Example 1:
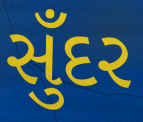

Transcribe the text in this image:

સુઁદર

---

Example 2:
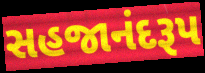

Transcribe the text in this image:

સહજાનંદરૂપ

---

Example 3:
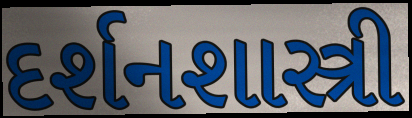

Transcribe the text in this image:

દર્શનશાસ્ત્રી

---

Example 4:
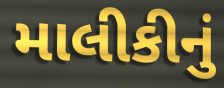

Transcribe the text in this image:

માલીકીનું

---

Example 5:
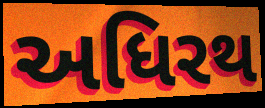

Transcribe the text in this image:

અધિરથ